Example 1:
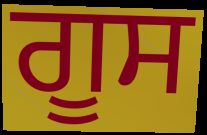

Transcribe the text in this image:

ਗੂਸ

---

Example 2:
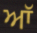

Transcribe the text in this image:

ਆੱ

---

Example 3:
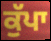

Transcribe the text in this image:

ਕੁੱਪਾ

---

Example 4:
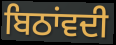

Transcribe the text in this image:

ਬਿਠਾਂਵਦੀ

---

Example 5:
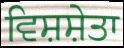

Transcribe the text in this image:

ਵਿਸ਼ਸ਼ੇਤਾ